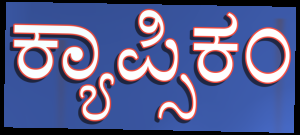
ಕ್ಯಾಪ್ಸಿಕಂ